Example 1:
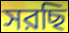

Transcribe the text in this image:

সরছি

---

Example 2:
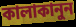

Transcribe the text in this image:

কালাকানুন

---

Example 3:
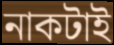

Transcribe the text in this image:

নাকটাই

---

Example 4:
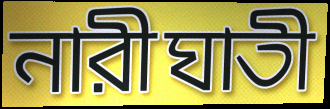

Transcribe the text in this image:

নারীঘাতী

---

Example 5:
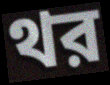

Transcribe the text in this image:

থর